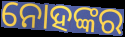
ନୋହଙ୍କର